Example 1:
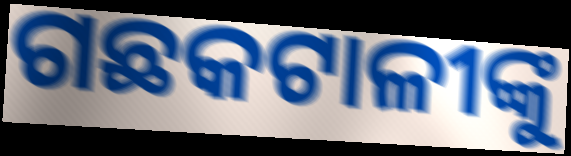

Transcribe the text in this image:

ଗଛକଟାଳୀଙ୍କୁ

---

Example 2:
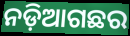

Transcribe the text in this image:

ନଡ଼ିଆଗଛର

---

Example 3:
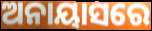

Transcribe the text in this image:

ଅନାୟାସରେ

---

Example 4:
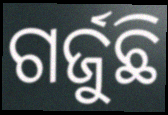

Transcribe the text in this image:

ଗର୍ଜୁଛି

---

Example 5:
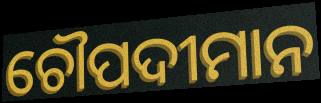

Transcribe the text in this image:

ଚୌପଦୀମାନ